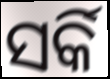
ସର୍କି